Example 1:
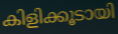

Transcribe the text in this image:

കിളിക്കൂടായി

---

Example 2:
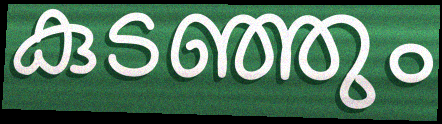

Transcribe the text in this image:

കുടഞ്ഞും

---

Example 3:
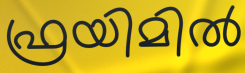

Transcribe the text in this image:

ഫ്രയിമിൽ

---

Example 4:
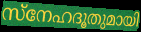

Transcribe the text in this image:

സ്നേഹദൂതുമായി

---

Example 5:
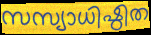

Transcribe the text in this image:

സസ്യാധിഷ്ഠിത